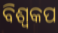
ବିଶ୍ୱକପ